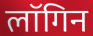
लॉगिन